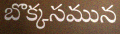
బొక్కసమున